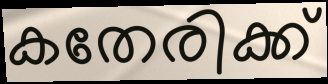
കതേരിക്ക്